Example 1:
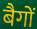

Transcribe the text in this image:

बैगों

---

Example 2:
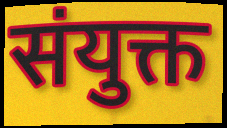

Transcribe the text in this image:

संयुक्त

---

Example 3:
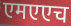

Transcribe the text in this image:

एमएएच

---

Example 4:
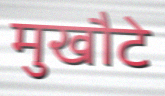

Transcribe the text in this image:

मुखौटे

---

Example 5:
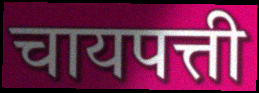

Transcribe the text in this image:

चायपत्ती